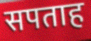
सपताह